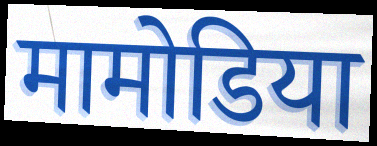
मामोडिया